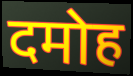
दमोह